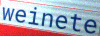
weinete